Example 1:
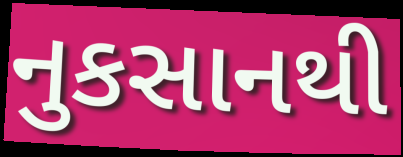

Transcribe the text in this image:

નુકસાનથી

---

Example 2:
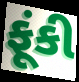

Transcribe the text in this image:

ફૂંકી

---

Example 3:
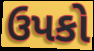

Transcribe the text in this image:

ઉપકો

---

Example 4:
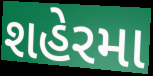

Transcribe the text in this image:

શહેરમા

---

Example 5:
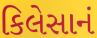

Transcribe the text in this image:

કિલેસાનં